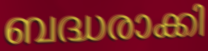
ബദ്ധരാക്കി